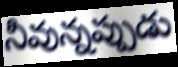
నీవున్నప్పుడు